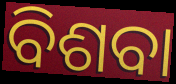
ବିଶବା